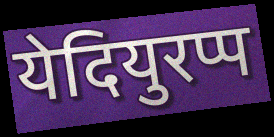
येदियुरप्प